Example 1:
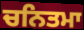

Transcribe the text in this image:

ਚਨਿਤਮਾ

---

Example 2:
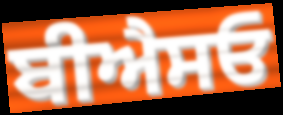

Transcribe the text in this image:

ਬੀਐਸਓ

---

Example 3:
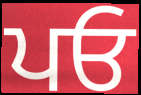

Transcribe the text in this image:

ਪਓ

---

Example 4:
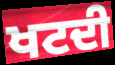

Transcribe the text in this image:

ਖਟਦੀ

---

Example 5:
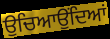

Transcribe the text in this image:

ਉਚਿਆਉਂਦਿਆਂ